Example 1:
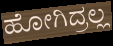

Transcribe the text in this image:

ಹೋಗಿದ್ರಲ್ಲ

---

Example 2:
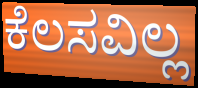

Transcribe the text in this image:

ಕೆಲಸವಿಲ್ಲ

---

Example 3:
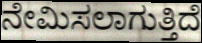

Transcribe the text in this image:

ನೇಮಿಸಲಾಗುತ್ತಿದೆ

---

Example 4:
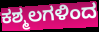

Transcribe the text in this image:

ಕಶ್ಮಲಗಳಿಂದ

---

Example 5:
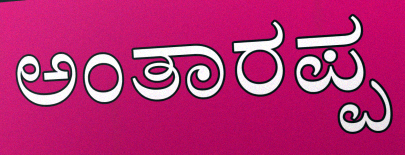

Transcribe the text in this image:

ಅಂತಾರಪ್ಪ